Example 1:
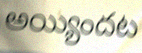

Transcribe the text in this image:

అయ్యిందట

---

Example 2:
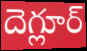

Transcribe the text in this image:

దెగ్లూర్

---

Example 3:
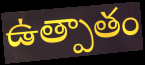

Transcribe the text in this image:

ఉత్పాతం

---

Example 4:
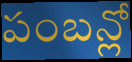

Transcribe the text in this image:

పంబన్లో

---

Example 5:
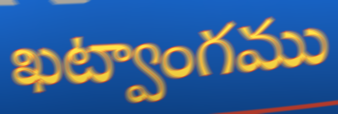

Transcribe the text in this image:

ఖట్వాంగము